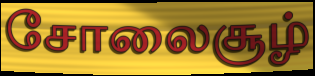
சோலைசூழ்